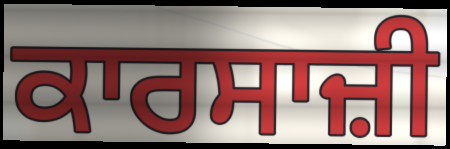
ਕਾਰਸਾਜ਼ੀ